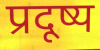
प्रदूष्य